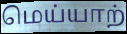
மெய்யாற்